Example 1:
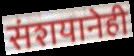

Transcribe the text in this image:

संशयानेही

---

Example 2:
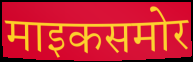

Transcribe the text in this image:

माइकसमोर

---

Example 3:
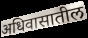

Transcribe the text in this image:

अधिवासातील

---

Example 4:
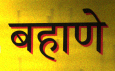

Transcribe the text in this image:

बहाणे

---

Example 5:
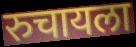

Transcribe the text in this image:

रुचायला